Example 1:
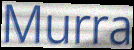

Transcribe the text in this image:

Murra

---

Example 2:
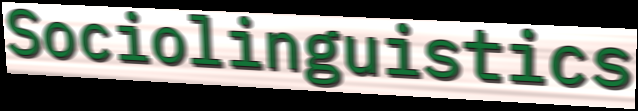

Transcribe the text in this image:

Sociolinguistics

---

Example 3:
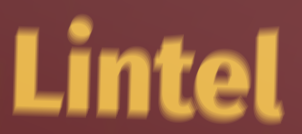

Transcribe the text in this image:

Lintel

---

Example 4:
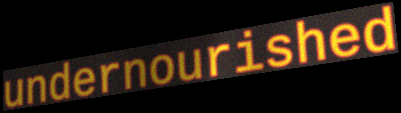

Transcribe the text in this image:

undernourished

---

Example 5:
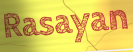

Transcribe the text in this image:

Rasayan